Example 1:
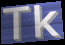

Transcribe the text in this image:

Tk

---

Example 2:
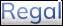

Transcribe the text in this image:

Regal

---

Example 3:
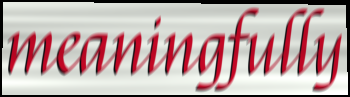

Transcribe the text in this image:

meaningfully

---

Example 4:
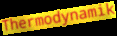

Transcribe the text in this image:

Thermodynamik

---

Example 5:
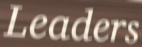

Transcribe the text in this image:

Leaders